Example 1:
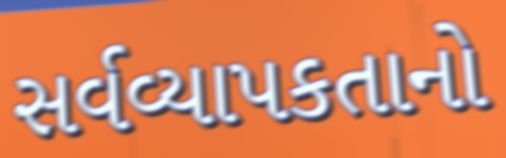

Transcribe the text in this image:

સર્વવ્યાપકતાનો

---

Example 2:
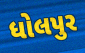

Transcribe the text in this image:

ધોલપુર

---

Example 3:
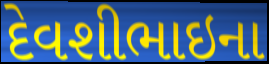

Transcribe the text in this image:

દેવશીભાઇના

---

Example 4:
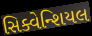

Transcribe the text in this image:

સિક્વેન્શિયલ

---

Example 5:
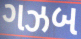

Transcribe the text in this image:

ગઝબ